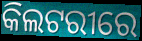
କିଲଟରୀରେ